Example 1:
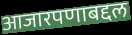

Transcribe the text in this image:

आजारपणाबद्दल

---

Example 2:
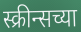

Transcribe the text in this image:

स्क्रीन्सच्या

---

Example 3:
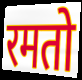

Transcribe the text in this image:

रमतो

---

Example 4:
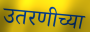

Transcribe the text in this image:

उतरणीच्या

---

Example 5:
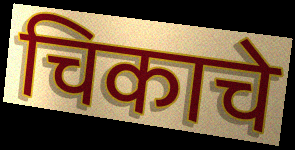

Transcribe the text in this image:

चिकाचे